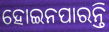
ହୋଇନପାରନ୍ତି